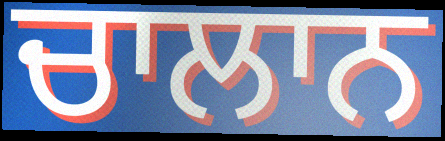
ਚਾਲਾਨ